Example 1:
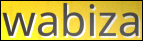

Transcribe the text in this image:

wabiza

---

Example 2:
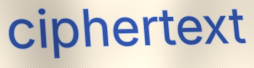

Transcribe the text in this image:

ciphertext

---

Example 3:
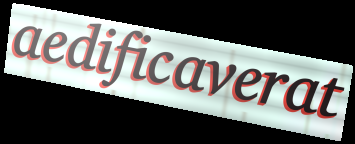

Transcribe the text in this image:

aedificaverat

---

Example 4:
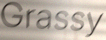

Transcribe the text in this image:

Grassy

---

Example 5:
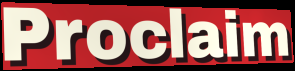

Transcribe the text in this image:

Proclaim